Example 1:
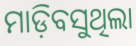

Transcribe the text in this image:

ମାଡ଼ିବସୁଥିଲା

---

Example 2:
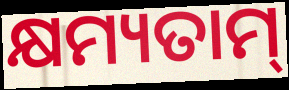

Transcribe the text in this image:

କ୍ଷମ୍ୟତାମ୍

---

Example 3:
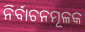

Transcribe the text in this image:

ନିର୍ବାଚନମୂଳକ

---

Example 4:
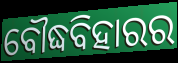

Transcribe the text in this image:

ବୌଦ୍ଧବିହାରର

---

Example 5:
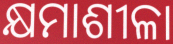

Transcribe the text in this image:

କ୍ଷମାଶୀଳା